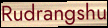
Rudrangshu